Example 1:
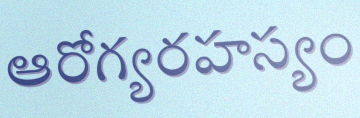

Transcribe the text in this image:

ఆరోగ్యరహస్యం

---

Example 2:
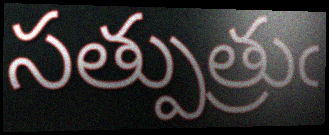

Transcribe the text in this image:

సత్పుత్రుఁ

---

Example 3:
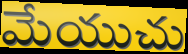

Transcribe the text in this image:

మేయుచు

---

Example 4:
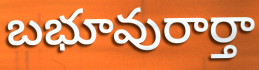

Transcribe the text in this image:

బభూవురార్తా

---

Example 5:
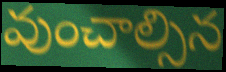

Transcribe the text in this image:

వుంచాల్సిన